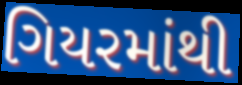
ગિયરમાંથી